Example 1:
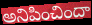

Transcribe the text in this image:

అనిపించిందా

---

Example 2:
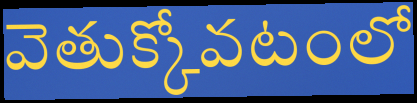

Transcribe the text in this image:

వెతుక్కోవటంలో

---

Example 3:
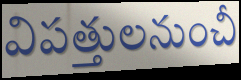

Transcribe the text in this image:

విపత్తులనుంచీ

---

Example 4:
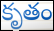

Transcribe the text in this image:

కృతం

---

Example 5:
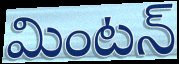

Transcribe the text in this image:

మింటన్